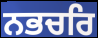
ਨਭਚਰਿ